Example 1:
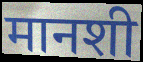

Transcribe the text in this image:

मानशी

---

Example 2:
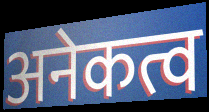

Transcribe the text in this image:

अनेकत्व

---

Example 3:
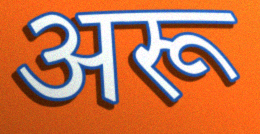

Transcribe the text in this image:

अरू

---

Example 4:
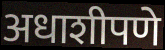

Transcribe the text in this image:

अधाशीपणे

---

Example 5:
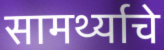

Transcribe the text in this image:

सामर्थ्याचे